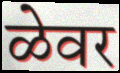
ळेवर